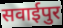
सवाईपुर